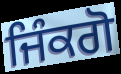
ਜਿੰਕਗੋ